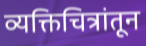
व्यक्तिचित्रांतून